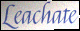
Leachate